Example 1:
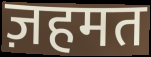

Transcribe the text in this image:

ज़हमत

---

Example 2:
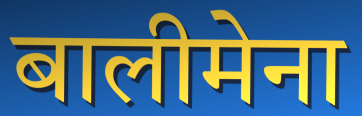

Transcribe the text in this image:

बालीमेना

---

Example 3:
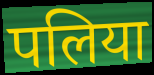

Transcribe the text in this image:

पलिया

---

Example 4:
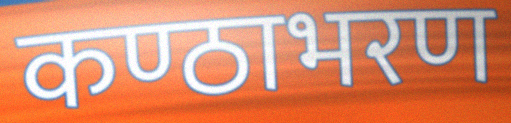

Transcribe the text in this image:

कण्ठाभरण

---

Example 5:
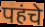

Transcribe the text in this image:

पहंचे